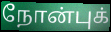
நோன்புக்